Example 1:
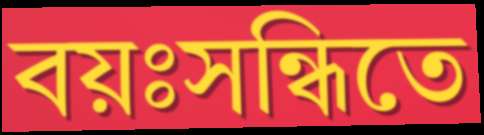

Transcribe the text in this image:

বয়ঃসন্ধিতে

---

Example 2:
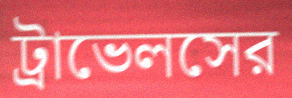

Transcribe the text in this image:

ট্রাভেলসের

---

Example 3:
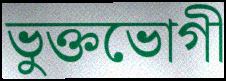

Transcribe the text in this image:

ভুক্তভোগী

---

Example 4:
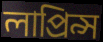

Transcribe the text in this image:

লাপ্রিন্স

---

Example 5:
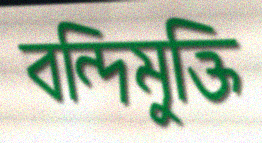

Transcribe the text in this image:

বন্দিমুক্তি